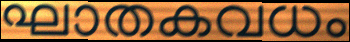
ഘാതകവധം